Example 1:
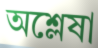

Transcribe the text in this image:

অশ্লেষা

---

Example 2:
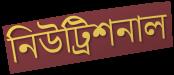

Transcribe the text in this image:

নিউট্রিশনাল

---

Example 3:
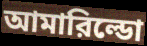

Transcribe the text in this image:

আমারিল্ডো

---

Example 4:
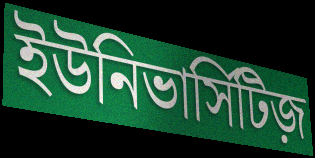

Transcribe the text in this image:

ইউনিভার্সিটিজ়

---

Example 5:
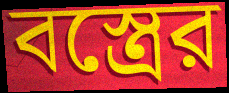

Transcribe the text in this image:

বস্ত্রের